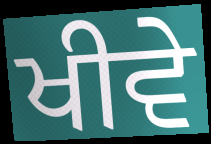
ਖੀਵੇ